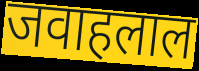
जवाहलाल